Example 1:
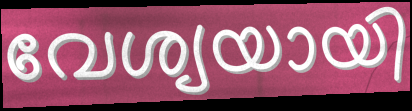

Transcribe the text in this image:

വേശ്യയായി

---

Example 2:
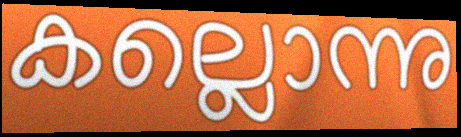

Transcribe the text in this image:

കല്ലൊന്നു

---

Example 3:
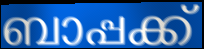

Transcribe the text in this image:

ബാപ്പക്ക്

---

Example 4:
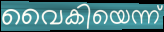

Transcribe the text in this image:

വൈകിയെന്ന്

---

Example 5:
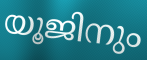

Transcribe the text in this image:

യൂജിനും